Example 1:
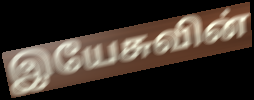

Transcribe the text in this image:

இயேசுவின்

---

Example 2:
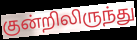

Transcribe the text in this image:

குன்றிலிருந்து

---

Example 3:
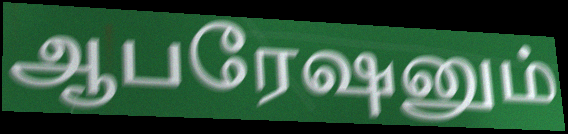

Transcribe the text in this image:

ஆபரேஷனும்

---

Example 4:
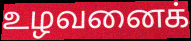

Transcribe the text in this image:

உழவனைக்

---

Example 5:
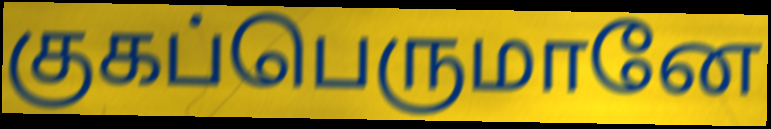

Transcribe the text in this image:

குகப்பெருமானே